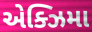
એક્ઝિમા